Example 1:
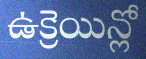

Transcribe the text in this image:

ఉక్రెయిన్లో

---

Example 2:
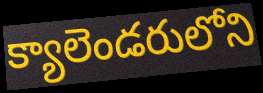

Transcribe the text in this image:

క్యాలెండరులోని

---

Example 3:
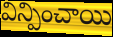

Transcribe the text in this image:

విన్పించాయి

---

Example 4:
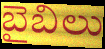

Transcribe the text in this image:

బైబిలు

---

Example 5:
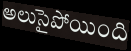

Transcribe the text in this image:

అలుసైపోయింది